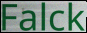
Falck